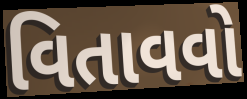
વિતાવવો